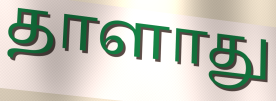
தாளாது